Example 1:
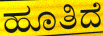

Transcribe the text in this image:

ಹೂತಿದೆ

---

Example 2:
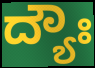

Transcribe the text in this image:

ದ್ಯೌಃ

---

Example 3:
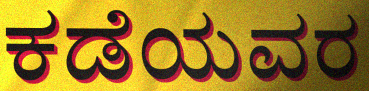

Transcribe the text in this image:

ಕಡೆಯವರ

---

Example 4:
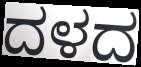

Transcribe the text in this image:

ದಳದ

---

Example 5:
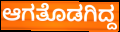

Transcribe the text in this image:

ಆಗತೊಡಗಿದ್ದ